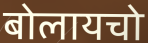
बोलायचो